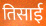
तिसाई